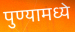
पुण्यामध्ये